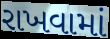
રાખવામાં